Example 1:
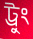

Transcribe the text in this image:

ট্রুং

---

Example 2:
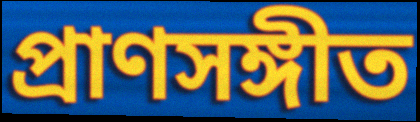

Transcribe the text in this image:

প্রাণসঙ্গীত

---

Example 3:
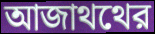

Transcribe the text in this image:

আজাথথের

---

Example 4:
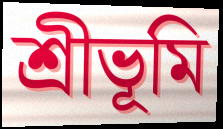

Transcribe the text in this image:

শ্রীভূমি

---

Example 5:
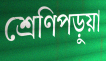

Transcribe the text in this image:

শ্রেণিপড়ুয়া